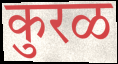
कुरळ